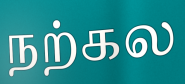
நற்கல